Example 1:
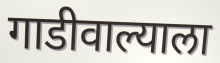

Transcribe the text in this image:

गाडीवाल्याला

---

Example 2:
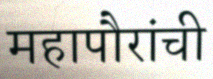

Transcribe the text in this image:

महापौरांची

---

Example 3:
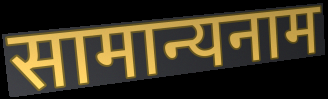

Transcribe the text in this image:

सामान्यनाम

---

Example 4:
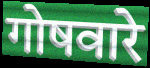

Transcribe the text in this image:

गोषवारे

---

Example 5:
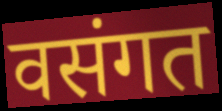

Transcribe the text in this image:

वसंगत